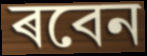
ৰবেন